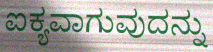
ಐಕ್ಯವಾಗುವುದನ್ನು